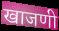
खाजणी